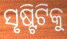
ସୃଷ୍ଟିଟିକୁ